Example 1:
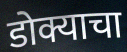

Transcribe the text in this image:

डोक्याचा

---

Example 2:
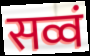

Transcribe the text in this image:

सव्वं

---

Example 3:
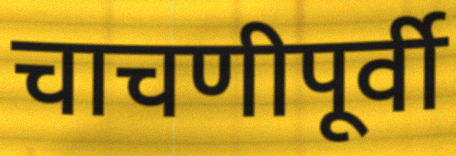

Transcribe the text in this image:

चाचणीपूर्वी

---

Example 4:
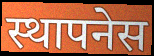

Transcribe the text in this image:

स्थापनेस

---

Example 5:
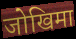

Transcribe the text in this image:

जोखिमा